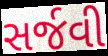
સર્જવી